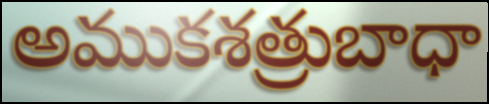
అముకశత్రుబాధా